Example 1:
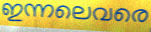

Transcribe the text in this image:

ഇന്നലെവരെ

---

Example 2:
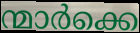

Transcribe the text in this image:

ന്മാർക്കെ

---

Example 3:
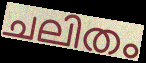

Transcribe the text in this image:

ചലിതം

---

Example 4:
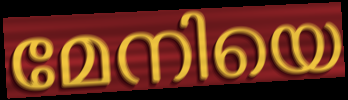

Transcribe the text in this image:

മേനിയെ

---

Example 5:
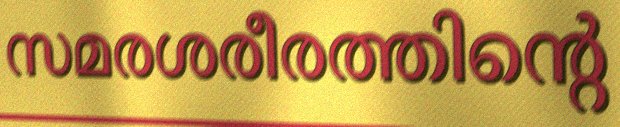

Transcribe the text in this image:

സമരശരീരത്തിന്റെ